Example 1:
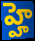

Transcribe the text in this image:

హ్హె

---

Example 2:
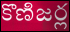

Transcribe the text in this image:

కొణిజర్ల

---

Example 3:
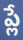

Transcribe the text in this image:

ప్లే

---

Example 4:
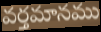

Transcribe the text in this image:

వర్తమానము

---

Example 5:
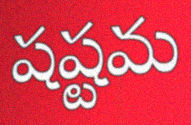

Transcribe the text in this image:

షష్టమ